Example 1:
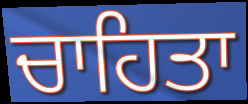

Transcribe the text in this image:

ਚਾਹਿਤਾ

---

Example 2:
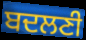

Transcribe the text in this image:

ਬਦਲਣੀ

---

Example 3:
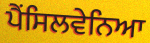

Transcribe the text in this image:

ਪੈਂਸਿਲਵੇਨਿਆ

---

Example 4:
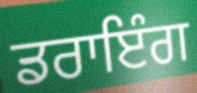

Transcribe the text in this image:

ਡਰਾਇੰਗ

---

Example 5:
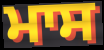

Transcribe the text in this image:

ਮਾਸ